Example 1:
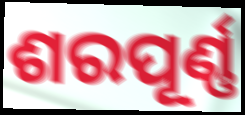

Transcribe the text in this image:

ଶରପୂର୍ଣ୍ଣ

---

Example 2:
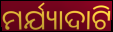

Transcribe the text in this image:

ମର୍ଯ୍ୟାଦାଟି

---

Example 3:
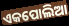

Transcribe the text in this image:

ଏକପୋଲିଆ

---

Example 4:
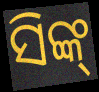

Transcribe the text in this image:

ସିଙ୍କ୍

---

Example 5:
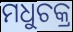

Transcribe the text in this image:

ମଧୁଚକ୍ର